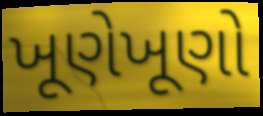
ખૂણેખૂણો